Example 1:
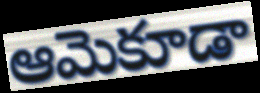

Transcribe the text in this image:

ఆమెకూడా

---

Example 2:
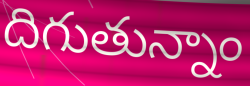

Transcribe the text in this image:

దిగుతున్నాం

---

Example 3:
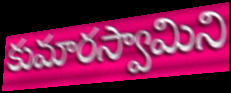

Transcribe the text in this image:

కుమారస్వామిని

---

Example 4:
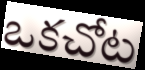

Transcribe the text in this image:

ఒకచోట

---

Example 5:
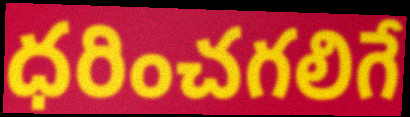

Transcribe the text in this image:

ధరించగలిగే